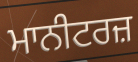
ਮਾਨੀਟਰਜ਼